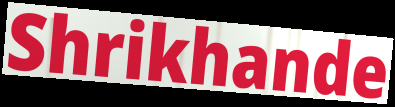
Shrikhande